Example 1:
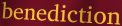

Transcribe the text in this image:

benediction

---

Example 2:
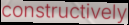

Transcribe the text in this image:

constructively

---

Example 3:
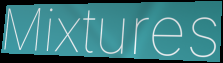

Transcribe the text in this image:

Mixtures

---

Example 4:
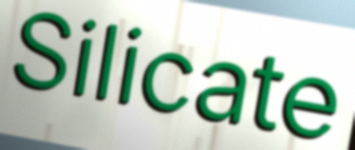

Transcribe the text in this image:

Silicate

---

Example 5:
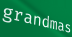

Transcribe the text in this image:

grandmas